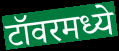
टॉवरमध्ये